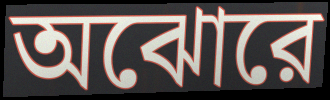
অঝোরে